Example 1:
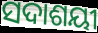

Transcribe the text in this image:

ସଦାଶୟୀ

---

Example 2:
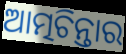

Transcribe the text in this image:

ଆତ୍ମଚିନ୍ତାର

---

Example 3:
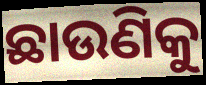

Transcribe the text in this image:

ଛାଉଣିକୁ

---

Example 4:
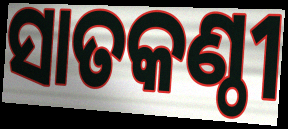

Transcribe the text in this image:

ସାତକଣ୍ଠୀ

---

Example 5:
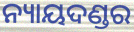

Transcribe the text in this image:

ନ୍ୟାୟଦଣ୍ଡର